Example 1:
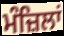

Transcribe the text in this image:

ਮੰਜ਼ਿਲਾਂ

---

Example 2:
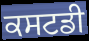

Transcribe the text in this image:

ਕਸਟਡੀ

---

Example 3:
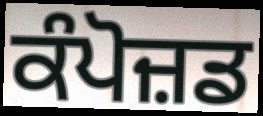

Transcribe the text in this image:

ਕੰਪੋਜ਼ਡ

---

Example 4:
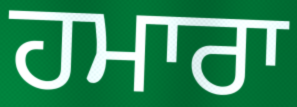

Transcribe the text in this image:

ਹਮਾਰਾ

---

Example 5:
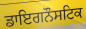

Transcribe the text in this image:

ਡਾਇਗਨੌਸਟਿਕ